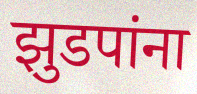
झुडपांना